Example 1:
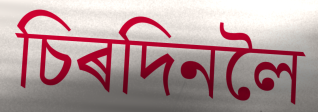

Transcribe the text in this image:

চিৰদিনলৈ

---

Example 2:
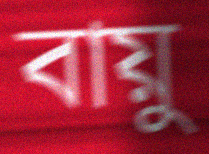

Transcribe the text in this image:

বায়ু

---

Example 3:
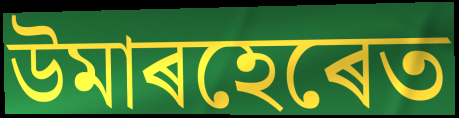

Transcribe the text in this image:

উমাৰহেৰেত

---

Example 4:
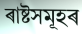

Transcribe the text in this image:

ৰাষ্টসমূহৰ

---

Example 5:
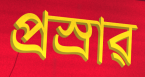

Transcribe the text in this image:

প্ৰস্ৰাৱ